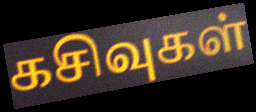
கசிவுகள்